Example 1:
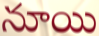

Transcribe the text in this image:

నూయి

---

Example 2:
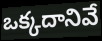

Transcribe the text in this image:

ఒక్కదానివే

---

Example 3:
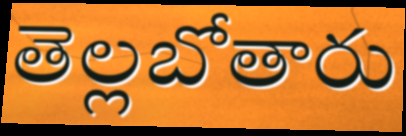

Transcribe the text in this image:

తెల్లబోతారు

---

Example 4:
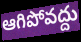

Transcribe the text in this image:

ఆగిపోవద్దు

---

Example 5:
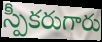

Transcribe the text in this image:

స్పీకరుగారు